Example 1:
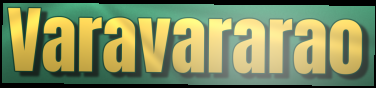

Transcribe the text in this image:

Varavararao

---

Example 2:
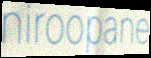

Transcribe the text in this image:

niroopane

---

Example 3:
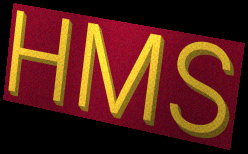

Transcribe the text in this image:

HMS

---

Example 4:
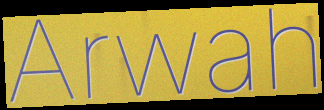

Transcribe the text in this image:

Arwah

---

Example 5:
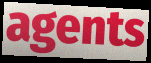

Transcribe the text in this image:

agents